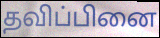
தவிப்பினை